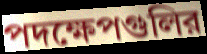
পদক্ষেপগুলির